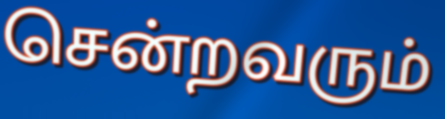
சென்றவரும்